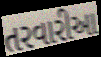
તરવારીઆ